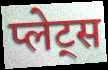
प्‍लेट्स